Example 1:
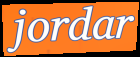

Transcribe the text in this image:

jordar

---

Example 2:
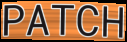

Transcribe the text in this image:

PATCH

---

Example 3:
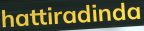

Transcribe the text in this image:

hattiradinda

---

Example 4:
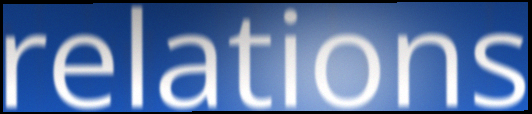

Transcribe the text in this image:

relations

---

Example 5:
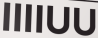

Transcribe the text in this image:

IIIIUU